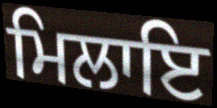
ਮਿਲਾਇ